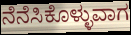
ನೆನೆಸಿಕೊಳ್ಳುವಾಗ